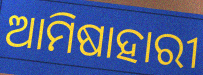
ଆମିଷାହାରୀ